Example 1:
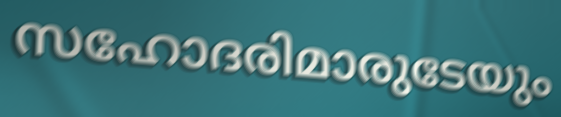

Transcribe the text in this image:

സഹോദരിമാരുടേയും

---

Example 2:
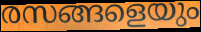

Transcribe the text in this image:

രസങ്ങളെയും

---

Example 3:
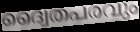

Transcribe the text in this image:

ദ്വൈതപരവും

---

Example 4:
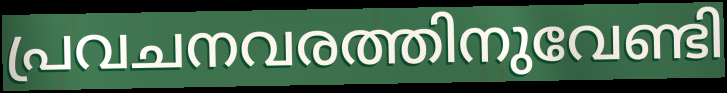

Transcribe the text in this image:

പ്രവചനവരത്തിനുവേണ്ടി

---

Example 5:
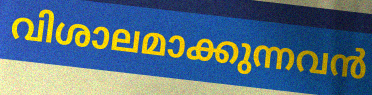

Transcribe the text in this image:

വിശാലമാക്കുന്നവൻ